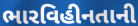
ભારવિહીનતાની